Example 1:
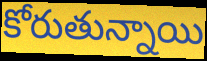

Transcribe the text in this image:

కోరుతున్నాయి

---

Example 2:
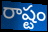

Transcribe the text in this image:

రాష్టం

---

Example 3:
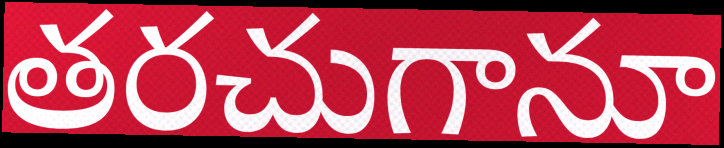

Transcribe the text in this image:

తరచుగానూ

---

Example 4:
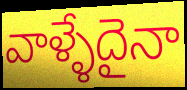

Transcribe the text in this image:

వాళ్ళేదైనా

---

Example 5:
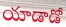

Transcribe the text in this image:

యాడాడో